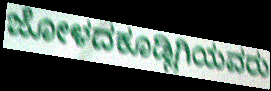
ಜೋಳದಕೂಡ್ಲಿಗಿಯವರು